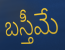
బస్తీమే